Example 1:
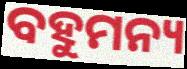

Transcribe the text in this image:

ବହୁମନ୍ୟ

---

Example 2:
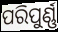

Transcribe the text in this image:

ପରିପୁର୍ଣ୍ଣ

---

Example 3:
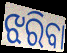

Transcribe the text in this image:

ଝରିବା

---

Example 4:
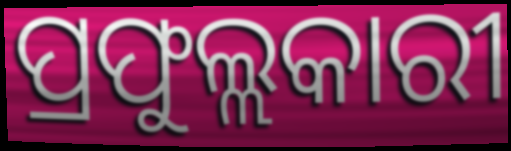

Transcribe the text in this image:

ପ୍ରଫୁଲ୍ଲକାରୀ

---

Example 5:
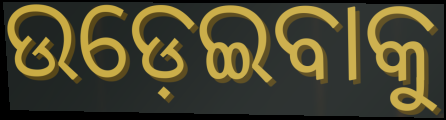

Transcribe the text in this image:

ଉଡ଼େଇବାକୁ